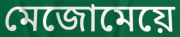
মেজোমেয়ে